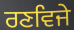
ਰਣਵਿਜੇ